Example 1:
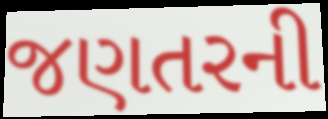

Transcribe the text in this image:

જણતરની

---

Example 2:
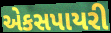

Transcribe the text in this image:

એકસપાયરી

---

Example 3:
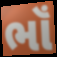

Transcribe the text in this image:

ભૉં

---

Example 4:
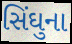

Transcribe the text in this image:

સિંઘુના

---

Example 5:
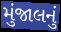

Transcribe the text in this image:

મુંજાલનું